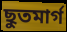
ছুতমার্গ